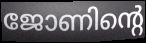
ജോണിന്റെ